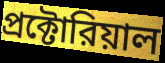
প্রক্টোরিয়াল